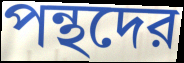
পন্থদের